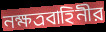
নক্ষত্রবাহিনীর